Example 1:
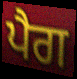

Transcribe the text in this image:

ਪੈਗ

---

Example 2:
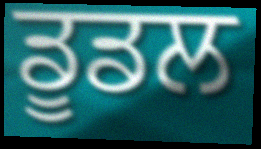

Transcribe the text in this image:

ਡੂਡਲ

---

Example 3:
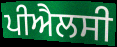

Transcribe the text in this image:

ਪੀਐਲਸੀ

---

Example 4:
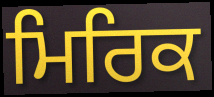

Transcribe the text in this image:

ਮਿਰਿਕ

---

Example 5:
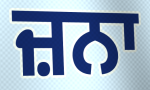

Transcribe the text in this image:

ਜ਼ਨਾ